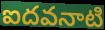
ఐదవనాటి